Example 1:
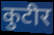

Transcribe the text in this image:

कुटीर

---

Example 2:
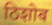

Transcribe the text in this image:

ठिशोब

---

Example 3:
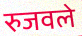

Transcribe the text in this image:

रुजवले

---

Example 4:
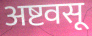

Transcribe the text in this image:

अष्टवसू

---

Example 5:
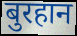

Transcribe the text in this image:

बुरहान